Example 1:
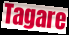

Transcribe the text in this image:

Tagare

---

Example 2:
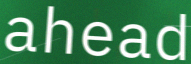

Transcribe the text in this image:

ahead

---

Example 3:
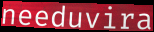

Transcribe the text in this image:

needuvira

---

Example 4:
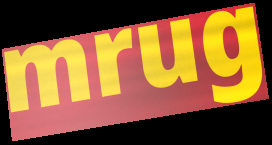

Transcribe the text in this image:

mrug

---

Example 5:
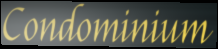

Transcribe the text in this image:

Condominium